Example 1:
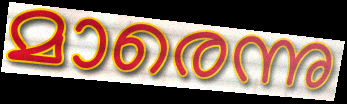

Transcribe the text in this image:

മാരെന്നു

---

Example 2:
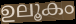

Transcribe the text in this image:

ഉലൂകം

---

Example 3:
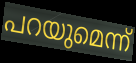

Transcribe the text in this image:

പറയുമെന്ന്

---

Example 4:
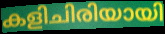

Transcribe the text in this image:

കളിചിരിയായി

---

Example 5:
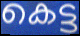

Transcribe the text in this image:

കെട്ട